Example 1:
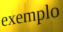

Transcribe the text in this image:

exemplo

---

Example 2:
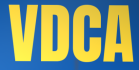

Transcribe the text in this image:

VDCA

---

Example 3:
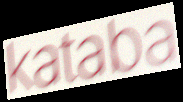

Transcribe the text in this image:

kataba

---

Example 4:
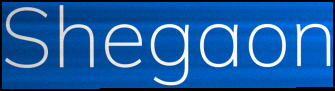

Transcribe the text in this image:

Shegaon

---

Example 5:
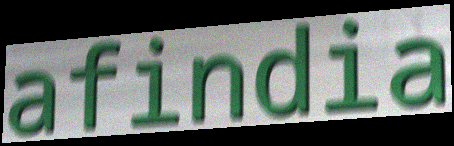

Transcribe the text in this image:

afindia